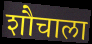
शौचाला